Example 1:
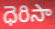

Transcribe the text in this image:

ధెరిసా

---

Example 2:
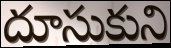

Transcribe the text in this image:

దూసుకుని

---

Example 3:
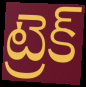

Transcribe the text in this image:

ట్రెక్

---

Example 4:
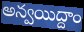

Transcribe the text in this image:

అన్వయిద్దాం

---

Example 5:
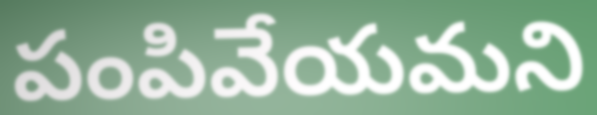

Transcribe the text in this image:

పంపివేయమని